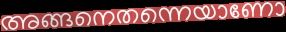
അങ്ങനെതന്നെയാണോ